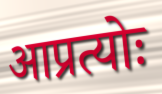
आप्रत्योः